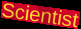
Scientist